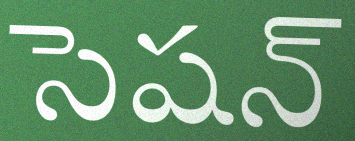
సెషన్